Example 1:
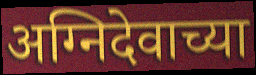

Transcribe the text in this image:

अग्निदेवाच्या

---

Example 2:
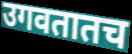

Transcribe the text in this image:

उगवतातच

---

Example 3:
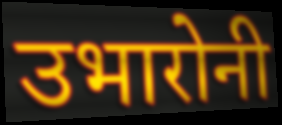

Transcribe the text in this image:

उभारोनी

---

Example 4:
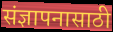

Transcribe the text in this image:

संज्ञापनासाठी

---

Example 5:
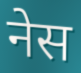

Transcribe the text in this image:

नेस